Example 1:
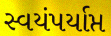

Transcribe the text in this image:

સ્વયંપર્યાપ્ત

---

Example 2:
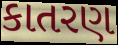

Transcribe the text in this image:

કાતરણ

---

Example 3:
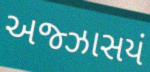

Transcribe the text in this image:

અજ્ઝાસયં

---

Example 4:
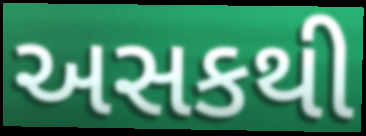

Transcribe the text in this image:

અસકથી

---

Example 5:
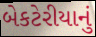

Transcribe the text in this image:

બેકટેરીયાનું